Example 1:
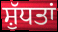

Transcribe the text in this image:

ਸ਼ੁੱਧਤਾਂ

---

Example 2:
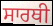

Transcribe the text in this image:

ਸਾਰਥੀ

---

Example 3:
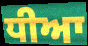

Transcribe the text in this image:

ਧੀਆ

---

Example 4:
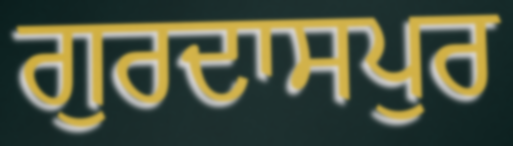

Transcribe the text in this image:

ਗੁਰਦਾਸਪੁਰ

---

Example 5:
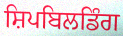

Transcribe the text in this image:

ਸ਼ਿਪਬਿਲਡਿੰਗ